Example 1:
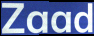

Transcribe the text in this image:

Zaad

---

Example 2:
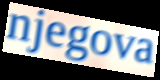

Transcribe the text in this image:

njegova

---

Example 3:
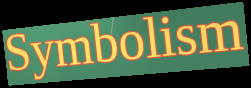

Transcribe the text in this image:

Symbolism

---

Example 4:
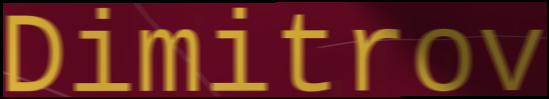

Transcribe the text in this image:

Dimitrov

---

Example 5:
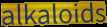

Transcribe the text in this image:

alkaloids